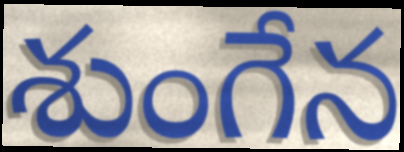
శుంగేన